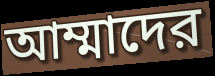
আম্মাদের